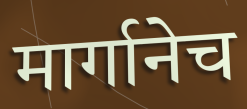
मार्गानेच